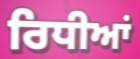
ਰਿਧੀਆਂ